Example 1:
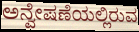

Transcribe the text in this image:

ಅನ್ವೇಷಣೆಯಲ್ಲಿರುವ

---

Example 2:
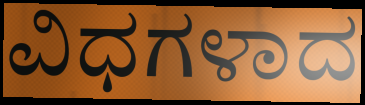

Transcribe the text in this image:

ವಿಧಗಳಾದ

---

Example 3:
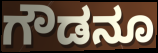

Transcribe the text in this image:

ಗೌಡನೂ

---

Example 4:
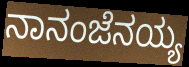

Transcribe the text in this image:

ನಾನಂಜೆನಯ್ಯ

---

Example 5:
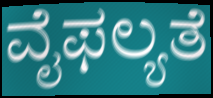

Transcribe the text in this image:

ವೈಫಲ್ಯತೆ